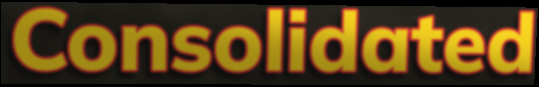
Consolidated